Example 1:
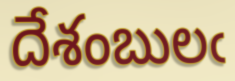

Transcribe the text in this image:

దేశంబులఁ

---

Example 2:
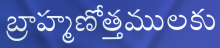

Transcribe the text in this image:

బ్రాహ్మణోత్తములకు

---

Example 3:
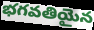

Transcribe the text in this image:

భగవతియైన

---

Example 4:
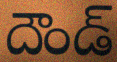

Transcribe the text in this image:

దౌండ్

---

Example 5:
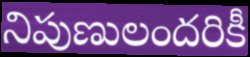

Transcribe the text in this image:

నిపుణులందరికీ